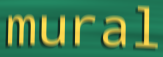
mural